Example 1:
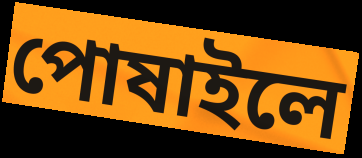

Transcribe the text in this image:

পোষাইলে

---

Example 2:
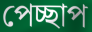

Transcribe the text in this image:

পেচ্ছাপ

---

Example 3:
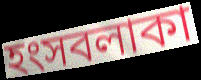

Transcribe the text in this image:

হংসবলাকা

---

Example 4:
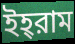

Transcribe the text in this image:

ইহ্‌রাম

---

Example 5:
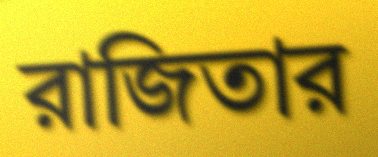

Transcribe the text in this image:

রাজিতার